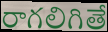
రాగలిగితే